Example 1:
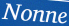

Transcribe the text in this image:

Nonne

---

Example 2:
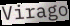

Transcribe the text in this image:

Virago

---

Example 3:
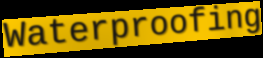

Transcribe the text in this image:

Waterproofing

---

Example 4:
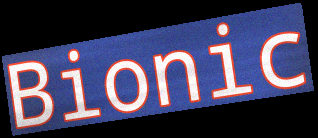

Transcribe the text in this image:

Bionic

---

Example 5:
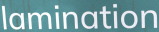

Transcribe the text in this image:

lamination